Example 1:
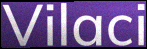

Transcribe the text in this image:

Vilaci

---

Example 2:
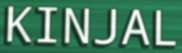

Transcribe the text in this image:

KINJAL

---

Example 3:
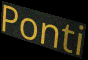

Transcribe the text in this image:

Ponti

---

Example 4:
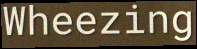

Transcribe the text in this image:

Wheezing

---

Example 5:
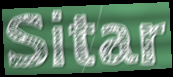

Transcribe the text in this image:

Sitar